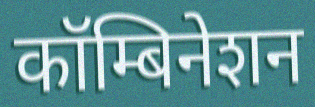
कॉम्बिनेशन